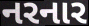
નરનાર